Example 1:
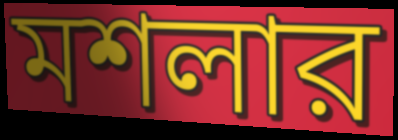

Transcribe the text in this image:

মশলার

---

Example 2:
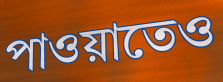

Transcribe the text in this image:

পাওয়াতেও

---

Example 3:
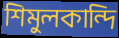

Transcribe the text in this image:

শিমুলকান্দি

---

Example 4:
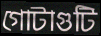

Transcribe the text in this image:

গোটাগুটি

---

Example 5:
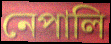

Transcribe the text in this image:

নেপালি